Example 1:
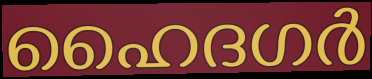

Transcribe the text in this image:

ഹൈദഗർ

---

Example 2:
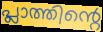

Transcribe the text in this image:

പ്ലാത്തിന്റെ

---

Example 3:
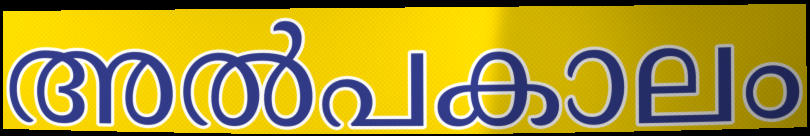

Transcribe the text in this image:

അൽപകാലം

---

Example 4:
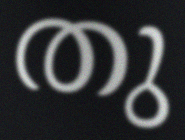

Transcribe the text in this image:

തു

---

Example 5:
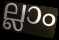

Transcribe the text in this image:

ല്ലാം